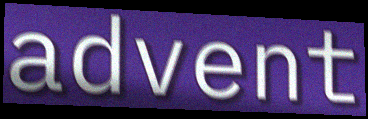
advent